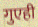
गुएही